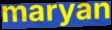
maryan